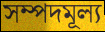
সম্পদমূল্য